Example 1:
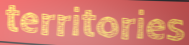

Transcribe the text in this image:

territories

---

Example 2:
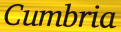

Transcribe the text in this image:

Cumbria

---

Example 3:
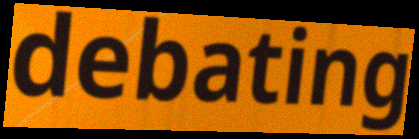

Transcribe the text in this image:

debating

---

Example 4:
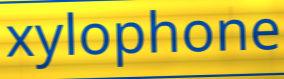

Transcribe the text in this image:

xylophone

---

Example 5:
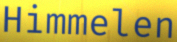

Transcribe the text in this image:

Himmelen